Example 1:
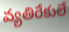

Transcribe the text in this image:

వ్యతిరేకులే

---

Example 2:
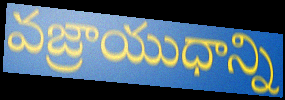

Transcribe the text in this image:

వజ్రాయుధాన్ని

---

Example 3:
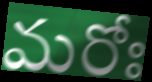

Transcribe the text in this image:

మరోః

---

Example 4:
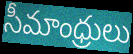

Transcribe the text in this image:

సీమాంధ్రులు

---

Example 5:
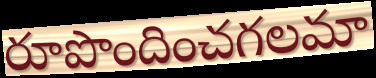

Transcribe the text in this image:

రూపొందించగలమా